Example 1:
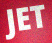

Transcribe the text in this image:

JET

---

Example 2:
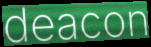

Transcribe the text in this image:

deacon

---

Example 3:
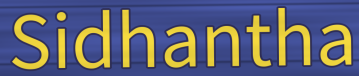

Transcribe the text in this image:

Sidhantha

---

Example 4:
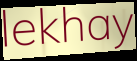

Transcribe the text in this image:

lekhay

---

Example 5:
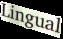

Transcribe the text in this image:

Lingual